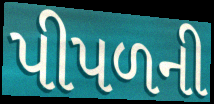
પીપળની